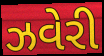
ઝવેરી